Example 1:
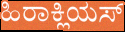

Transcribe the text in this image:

ಹಿರಾಕ್ಲಿಯಸ್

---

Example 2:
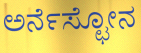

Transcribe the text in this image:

ಅರ್ನೆಸ್ಟೋನ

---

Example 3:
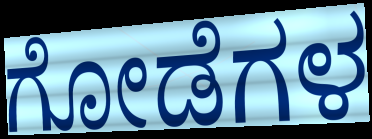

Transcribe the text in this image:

ಗೋಡೆಗಳ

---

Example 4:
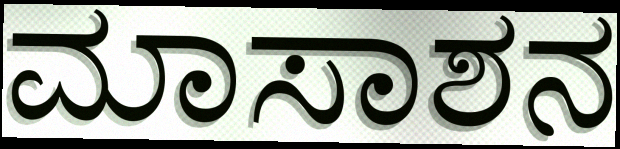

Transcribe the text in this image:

ಮಾಸಾಶನ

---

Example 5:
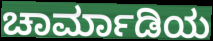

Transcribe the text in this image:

ಚಾರ್ಮಾಡಿಯ